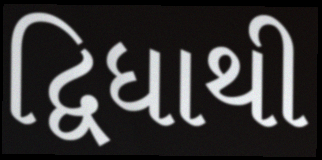
દ્વિધાથી